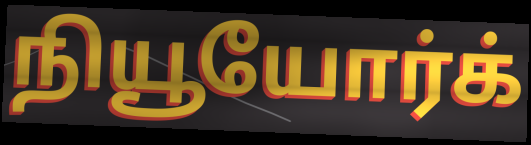
நியூயோர்க்